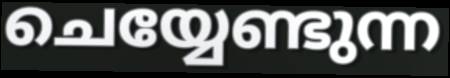
ചെയ്യേണ്ടുന്ന